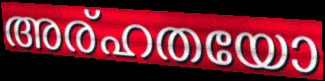
അര്ഹതയോ